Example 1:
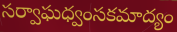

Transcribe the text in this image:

సర్వాఘధ్వంసకమాద్యం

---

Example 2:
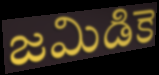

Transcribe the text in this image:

జమిడికె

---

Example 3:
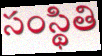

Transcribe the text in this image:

సంస్థితి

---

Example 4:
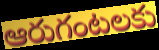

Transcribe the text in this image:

ఆరుగంటలకు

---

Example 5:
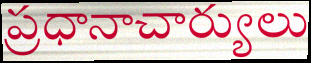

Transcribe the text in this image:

ప్రధానాచార్యులు